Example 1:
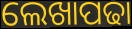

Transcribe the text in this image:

ଲେଖାପଢା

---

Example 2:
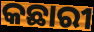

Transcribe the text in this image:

କଛାରୀ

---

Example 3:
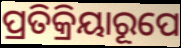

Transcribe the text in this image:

ପ୍ରତିକ୍ରିୟାରୂପେ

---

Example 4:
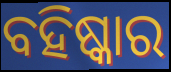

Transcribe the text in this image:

ବହିଷ୍କାର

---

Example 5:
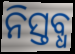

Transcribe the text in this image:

ନିସ୍ତବ୍ଧ